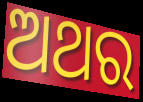
ଅଥର